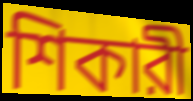
শিকারী